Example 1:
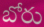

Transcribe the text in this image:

బోరు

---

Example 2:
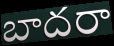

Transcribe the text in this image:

బాదరా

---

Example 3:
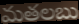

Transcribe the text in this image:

మతలబు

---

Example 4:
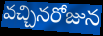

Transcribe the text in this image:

వచ్చినరోజున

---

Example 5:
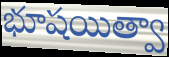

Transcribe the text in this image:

భూషయిత్వా